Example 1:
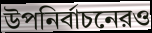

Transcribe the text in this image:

উপনির্বাচনেরও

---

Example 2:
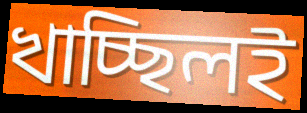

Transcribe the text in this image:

খাচ্ছিলই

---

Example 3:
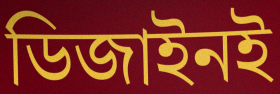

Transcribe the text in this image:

ডিজাইনই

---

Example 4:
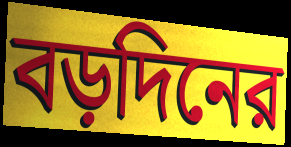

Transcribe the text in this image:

বড়দিনের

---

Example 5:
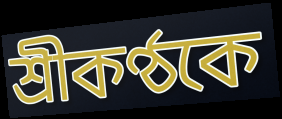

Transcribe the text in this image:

শ্রীকণ্ঠকে